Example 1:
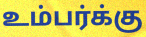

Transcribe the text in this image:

உம்பர்க்கு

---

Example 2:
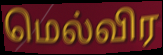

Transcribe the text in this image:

மெல்விர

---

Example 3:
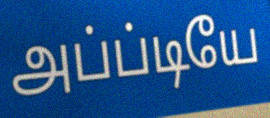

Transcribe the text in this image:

அப்ப்டியே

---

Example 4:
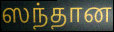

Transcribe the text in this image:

ஸந்தான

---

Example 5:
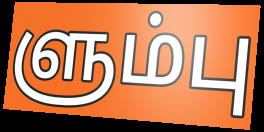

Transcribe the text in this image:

ளும்பு